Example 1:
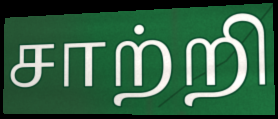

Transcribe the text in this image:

சாற்றி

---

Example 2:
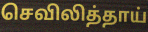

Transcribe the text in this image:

செவிலித்தாய்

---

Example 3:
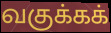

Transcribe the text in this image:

வகுக்கக்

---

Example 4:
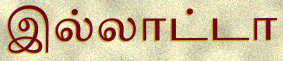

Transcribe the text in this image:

இல்லாட்டா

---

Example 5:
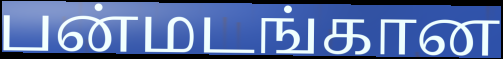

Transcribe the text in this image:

பன்மடங்கான